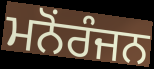
ਮਨੋਂਰੰਜਨ